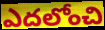
ఎదలోంచి